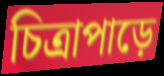
চিত্রাপাড়ে